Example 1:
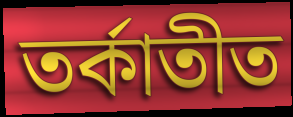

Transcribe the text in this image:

তৰ্কাতীত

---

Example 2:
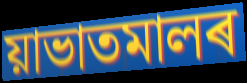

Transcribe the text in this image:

য়াভাতমালৰ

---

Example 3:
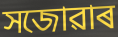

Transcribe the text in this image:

সজোৱাৰ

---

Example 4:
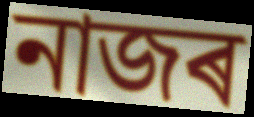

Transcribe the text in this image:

নাজৰ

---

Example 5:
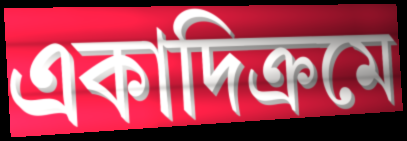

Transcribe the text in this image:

একাদিক্ৰমে